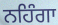
ਨਹਿੰਗਾ